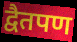
द्वैतपण